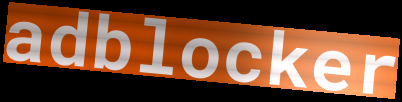
adblocker